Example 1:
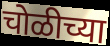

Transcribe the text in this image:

चोळीच्या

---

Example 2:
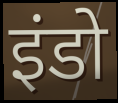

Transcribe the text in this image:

इंडो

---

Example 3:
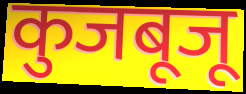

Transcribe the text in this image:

कुजबूजू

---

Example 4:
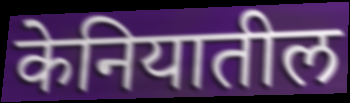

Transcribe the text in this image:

केनियातील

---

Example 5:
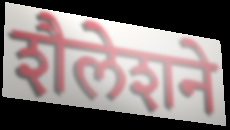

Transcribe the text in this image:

शैलेशने